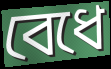
বেধে